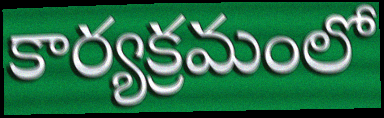
కార్యక్రమంలో